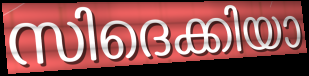
സിദെക്കിയാ